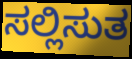
ಸಲ್ಲಿಸುತ